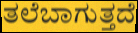
ತಲೆಬಾಗುತ್ತದೆ